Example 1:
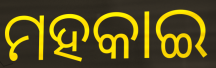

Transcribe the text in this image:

ମହକାଇ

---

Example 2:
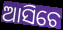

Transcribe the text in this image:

ଆସିଚେ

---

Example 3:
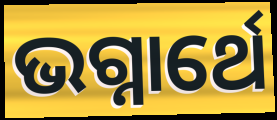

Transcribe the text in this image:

ଭଗ୍ନାର୍ଥେ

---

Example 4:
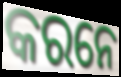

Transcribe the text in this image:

କରନେ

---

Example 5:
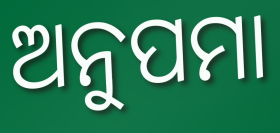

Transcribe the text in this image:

ଅନୁପମା